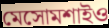
মেসোমশাইও